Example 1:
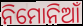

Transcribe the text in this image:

ନିମୋନିଆଁ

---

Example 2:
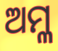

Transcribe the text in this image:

ଅମ୍ଳ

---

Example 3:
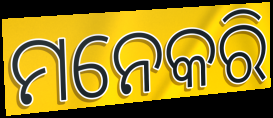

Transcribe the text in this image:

ମନେକରି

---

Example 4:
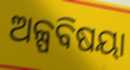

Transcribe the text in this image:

ଅଳ୍ପବିଷୟା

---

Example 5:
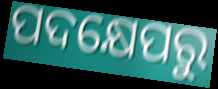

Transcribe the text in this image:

ପଦକ୍ଷେପରୁ